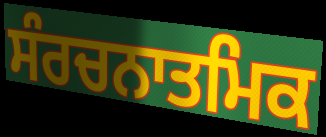
ਸੰਰਚਨਾਤਮਿਕ